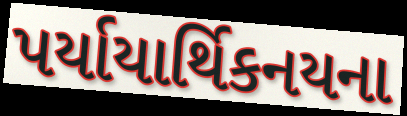
પર્યાયાર્થિકનયના